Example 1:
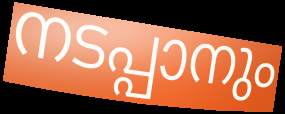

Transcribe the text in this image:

നടപ്പാനും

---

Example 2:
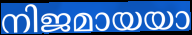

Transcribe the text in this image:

നിജമായയാ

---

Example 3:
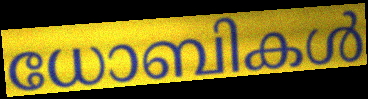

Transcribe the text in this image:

ധോബികൾ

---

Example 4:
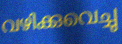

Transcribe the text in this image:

വഴിക്കുവെച്ചു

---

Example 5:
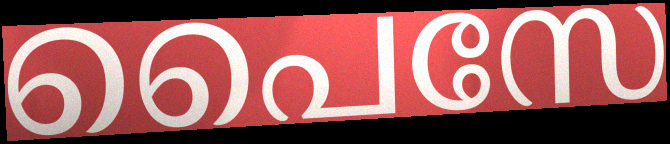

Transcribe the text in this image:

പൈസേ